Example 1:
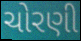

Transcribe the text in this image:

ચોરણી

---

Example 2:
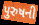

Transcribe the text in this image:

પુરુષની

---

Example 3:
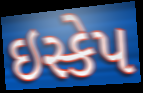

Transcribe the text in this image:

ઇસ્કેપ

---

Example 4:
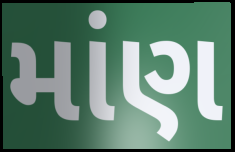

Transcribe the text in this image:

માંણ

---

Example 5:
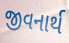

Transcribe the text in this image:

જીવનાર્થ